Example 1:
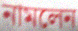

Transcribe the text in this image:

নামলেন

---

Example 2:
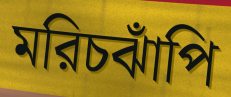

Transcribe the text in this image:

মরিচঝাঁপি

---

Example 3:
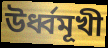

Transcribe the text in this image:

উর্ধ্বমূখী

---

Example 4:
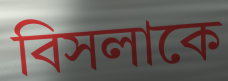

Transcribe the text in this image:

বিসলাকে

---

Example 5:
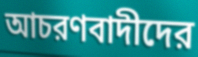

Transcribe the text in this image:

আচরণবাদীদের